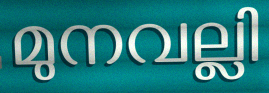
മുനവല്ലി